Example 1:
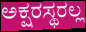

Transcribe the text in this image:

ಅಕ್ಷರಸ್ಥರಲ್ಲ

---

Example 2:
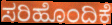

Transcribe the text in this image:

ಸರಿಹೊಂದಿಕೆ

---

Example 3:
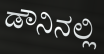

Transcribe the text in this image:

ಡೌನಿನಲ್ಲಿ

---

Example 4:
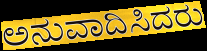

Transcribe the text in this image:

ಅನುವಾದಿಸಿದರು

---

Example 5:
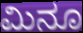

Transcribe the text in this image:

ಮಿನೂ